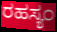
ರಹಸ್ಯಂ